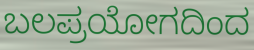
ಬಲಪ್ರಯೋಗದಿಂದ